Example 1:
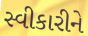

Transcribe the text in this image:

સ્વીકારીને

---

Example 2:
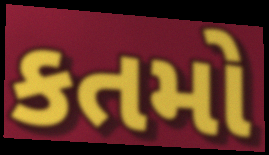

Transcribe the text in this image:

કતમો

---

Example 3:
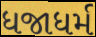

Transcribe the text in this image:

ધજાધર્મ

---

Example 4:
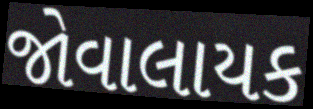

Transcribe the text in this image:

જોવાલાયક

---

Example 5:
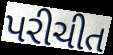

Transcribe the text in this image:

પરીચીત